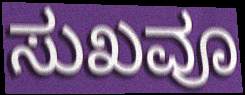
ಸುಖವೂ